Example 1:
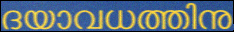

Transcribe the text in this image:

ദയാവധത്തിനു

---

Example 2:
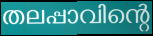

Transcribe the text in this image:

തലപ്പാവിന്റെ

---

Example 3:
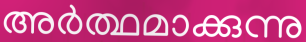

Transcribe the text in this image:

അർത്ഥമാക്കുന്നു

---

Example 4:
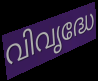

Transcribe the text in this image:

വിവൃദ്ധേ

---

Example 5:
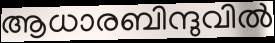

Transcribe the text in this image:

ആധാരബിന്ദുവിൽ